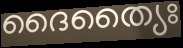
ദൈത്യൈഃ